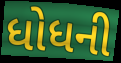
ધોધની